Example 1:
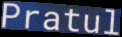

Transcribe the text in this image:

Pratul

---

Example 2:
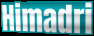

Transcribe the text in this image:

Himadri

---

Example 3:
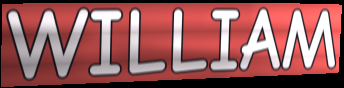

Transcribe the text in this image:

WILLIAM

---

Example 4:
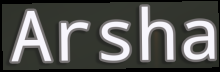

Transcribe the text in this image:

Arsha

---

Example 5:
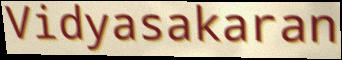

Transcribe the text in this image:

Vidyasakaran